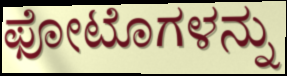
ಫೋಟೊಗಳನ್ನು